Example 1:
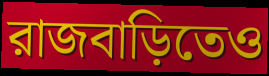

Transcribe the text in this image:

রাজবাড়িতেও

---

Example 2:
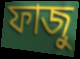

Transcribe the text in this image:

ফাজু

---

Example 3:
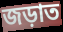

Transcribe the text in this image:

জড়াত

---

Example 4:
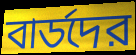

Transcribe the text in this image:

বার্ডদের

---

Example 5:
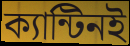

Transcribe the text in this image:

ক্যান্টিনই